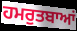
ਹਮਰੁਤਬਾਆਂ